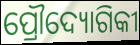
ପ୍ରୌଦ୍ୟୋଗିକୀ